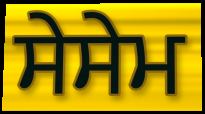
ਸੇਸੇਮ